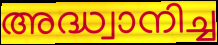
അദ്ധ്വാനിച്ച